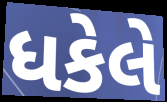
ધકેલે